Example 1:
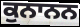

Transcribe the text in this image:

ਕੁਨਾਨਨ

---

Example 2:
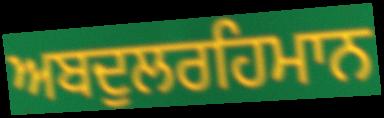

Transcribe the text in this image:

ਅਬਦੁਲਰਹਿਮਾਨ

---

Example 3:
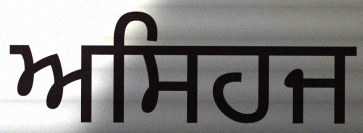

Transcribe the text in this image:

ਅਸਿਹਜ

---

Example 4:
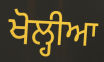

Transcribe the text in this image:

ਖੋਲ੍ਹੀਆ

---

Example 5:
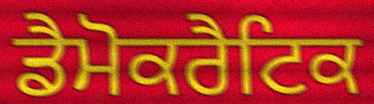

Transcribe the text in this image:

ਡੈਮੋਕਰੈਟਿਕ